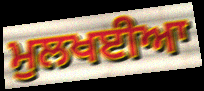
ਮੁਲਖਈਆ